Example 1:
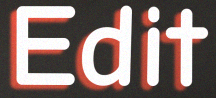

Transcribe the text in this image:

Edit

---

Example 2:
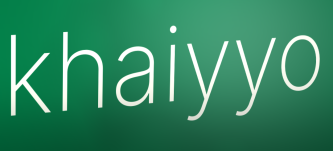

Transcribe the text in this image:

khaiyyo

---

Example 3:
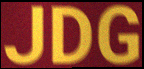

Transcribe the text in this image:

JDG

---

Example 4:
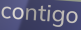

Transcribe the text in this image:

contigo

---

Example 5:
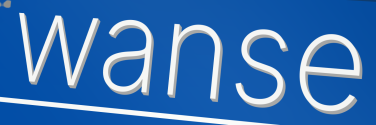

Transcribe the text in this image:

wanse